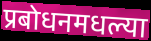
प्रबोधनमधल्या